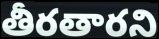
తీరతారని